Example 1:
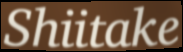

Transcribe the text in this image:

Shiitake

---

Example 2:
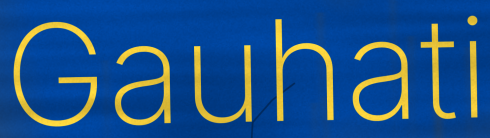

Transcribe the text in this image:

Gauhati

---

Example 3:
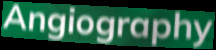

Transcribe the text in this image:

Angiography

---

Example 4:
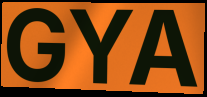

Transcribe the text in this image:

GYA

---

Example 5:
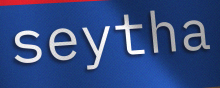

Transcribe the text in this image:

seytha